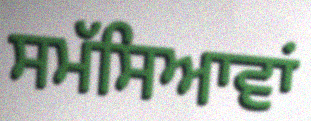
ਸਮੱਸਿਆਵਾਂ